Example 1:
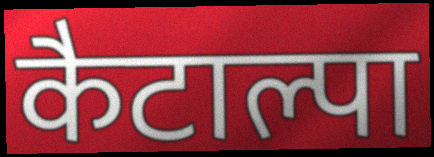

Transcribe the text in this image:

कैटाल्पा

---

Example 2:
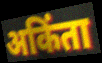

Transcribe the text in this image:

अकिंता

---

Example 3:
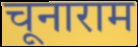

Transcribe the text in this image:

चूनाराम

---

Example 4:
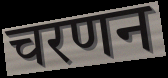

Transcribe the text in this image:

चरणन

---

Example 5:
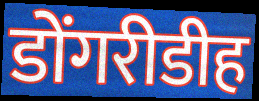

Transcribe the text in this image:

डोंगरीडीह